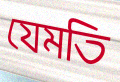
যেমতি